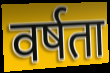
वर्षता